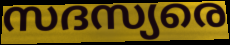
സദസ്യരെ